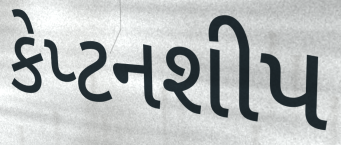
કેપ્ટનશીપ